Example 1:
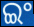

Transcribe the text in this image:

ଇଂ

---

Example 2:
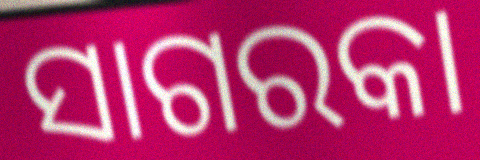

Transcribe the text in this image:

ସାଗରକା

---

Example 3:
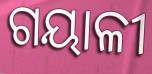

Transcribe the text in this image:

ଗୟାଳୀ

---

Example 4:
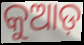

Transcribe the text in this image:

କୁଆଡ଼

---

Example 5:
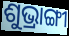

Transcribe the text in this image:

ଶୁଭ୍ରାଙ୍ଗୀ